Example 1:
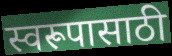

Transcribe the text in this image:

स्वरूपासाठी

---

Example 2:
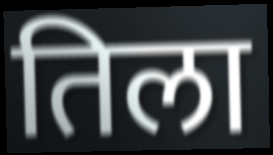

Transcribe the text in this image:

तिला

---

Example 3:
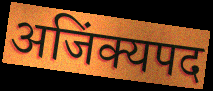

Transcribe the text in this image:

अजिंक्यपद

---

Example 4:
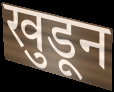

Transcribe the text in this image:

खुडून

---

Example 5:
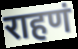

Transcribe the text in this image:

राहणं